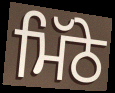
ਮਿੱਠੇ